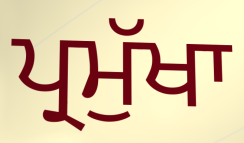
ਪ੍ਰਮੁੱਖਾ